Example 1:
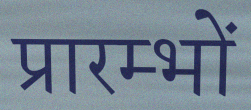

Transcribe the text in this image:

प्रारम्भों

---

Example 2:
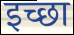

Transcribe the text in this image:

इच्‍छा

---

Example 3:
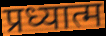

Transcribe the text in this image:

प्रध्यात्म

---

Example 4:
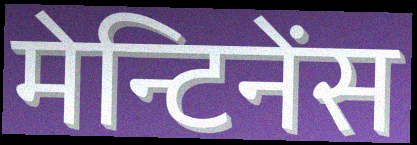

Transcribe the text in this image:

मेन्टिनेंस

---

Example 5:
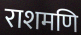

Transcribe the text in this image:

राशमणि